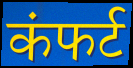
कंफर्ट